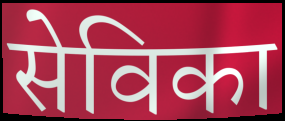
सेविका